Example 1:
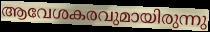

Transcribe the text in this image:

ആവേശകരവുമായിരുന്നു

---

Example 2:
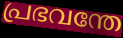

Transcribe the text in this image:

പ്രഭവന്തേ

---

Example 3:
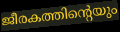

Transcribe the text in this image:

ജീരകത്തിന്റെയും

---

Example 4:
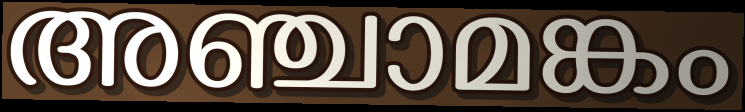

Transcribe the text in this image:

അഞ്ചാമങ്കം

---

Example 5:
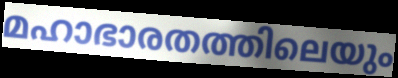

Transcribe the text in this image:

മഹാഭാരതത്തിലെയും